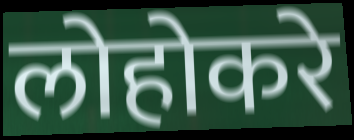
लोहोकरे